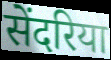
सेंदरिया